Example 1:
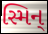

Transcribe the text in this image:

સ્મિન્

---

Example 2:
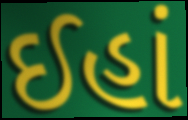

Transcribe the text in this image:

ઈહાં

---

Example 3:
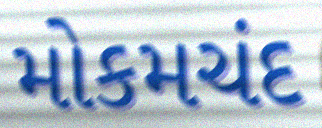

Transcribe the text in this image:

મોકમચંદ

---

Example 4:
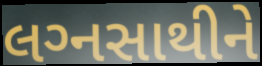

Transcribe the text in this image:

લગ્‍નસાથીને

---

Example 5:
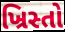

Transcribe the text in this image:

ખ્રિસ્તો